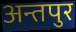
अन्तपुर